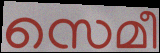
സെമീ